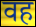
वह